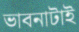
ভাবনাটাই